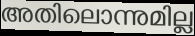
അതിലൊന്നുമില്ല